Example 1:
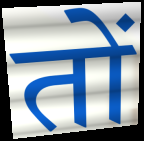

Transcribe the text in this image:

तों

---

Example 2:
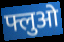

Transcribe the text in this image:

फ्लुओ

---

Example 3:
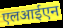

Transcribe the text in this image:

एलआईएन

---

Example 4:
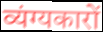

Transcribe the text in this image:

व्‍यंग्‍यकारों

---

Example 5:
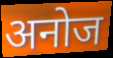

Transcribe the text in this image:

अनोज